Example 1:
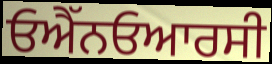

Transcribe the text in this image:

ਓਐੱਨਓਆਰਸੀ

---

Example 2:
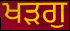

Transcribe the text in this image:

ਖੜਗੁ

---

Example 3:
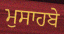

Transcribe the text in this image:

ਮੁਸਾਹਬੇ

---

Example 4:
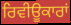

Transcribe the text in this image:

ਰਿਵੀਊਕਾਰਾਂ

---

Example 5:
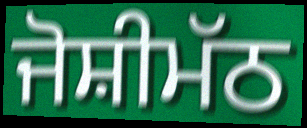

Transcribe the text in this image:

ਜੋਸ਼ੀਮੱਠ